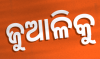
ଜୁଆଳିକୁ